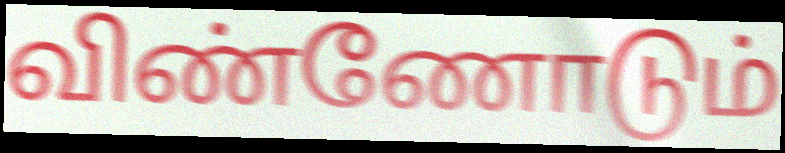
விண்ணோடும்